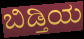
ಬಿಡ್ತಿಯ